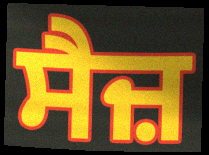
ਸੈਜ਼